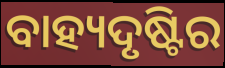
ବାହ୍ୟଦୃଷ୍ଟିର